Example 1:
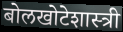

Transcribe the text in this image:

बोलखोटेशास्त्री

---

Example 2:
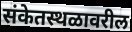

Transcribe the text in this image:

संकेतस्थळावरील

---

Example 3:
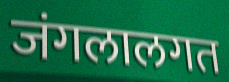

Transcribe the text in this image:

जंगलालगत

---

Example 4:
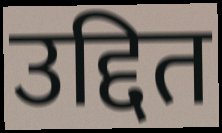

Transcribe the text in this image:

उद्दित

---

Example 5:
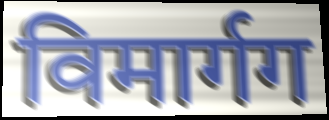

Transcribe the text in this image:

विमार्गग